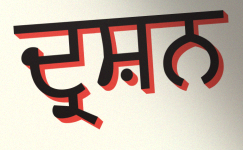
ਦ੍ਰਸ਼ਨ